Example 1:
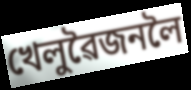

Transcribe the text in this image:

খেলুৱৈজনলৈ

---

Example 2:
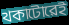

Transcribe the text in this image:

থকাটোৱেই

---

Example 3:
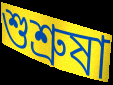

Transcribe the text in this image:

শুশ্ৰুষা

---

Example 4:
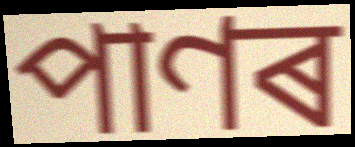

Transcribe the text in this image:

পাণৰ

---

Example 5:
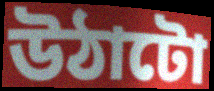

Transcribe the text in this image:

উঠাটো